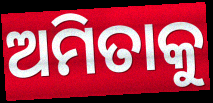
ଅମିତାକୁ